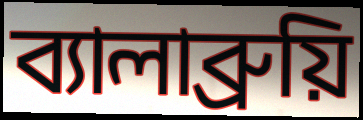
ব্যালাব্রুয়ি